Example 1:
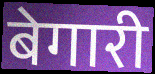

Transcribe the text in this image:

बेगारी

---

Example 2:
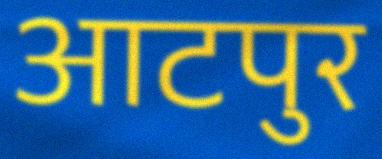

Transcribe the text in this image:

आटपुर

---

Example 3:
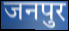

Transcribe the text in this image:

जनपुर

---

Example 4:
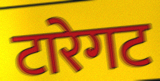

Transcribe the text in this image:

टारेगट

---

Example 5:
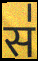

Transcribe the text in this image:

स॑